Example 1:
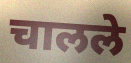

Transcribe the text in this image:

चालले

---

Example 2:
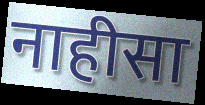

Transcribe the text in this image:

नाहीसा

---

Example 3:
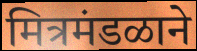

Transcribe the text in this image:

मित्रमंडळाने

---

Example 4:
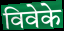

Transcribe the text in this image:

विवेके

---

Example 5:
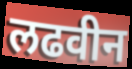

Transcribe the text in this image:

लढवीन